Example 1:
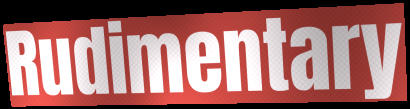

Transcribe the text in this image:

Rudimentary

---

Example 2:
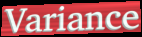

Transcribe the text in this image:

Variance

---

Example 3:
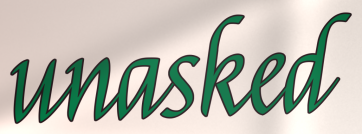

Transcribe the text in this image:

unasked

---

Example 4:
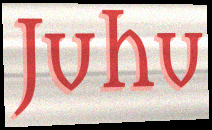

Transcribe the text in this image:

Juhu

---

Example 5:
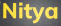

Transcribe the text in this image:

Nitya